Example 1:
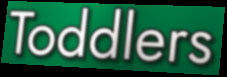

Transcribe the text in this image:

Toddlers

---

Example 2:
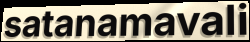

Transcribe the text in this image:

satanamavali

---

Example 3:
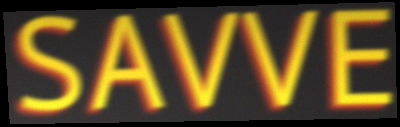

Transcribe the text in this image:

SAVVE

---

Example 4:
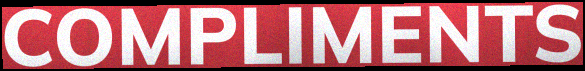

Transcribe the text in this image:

COMPLIMENTS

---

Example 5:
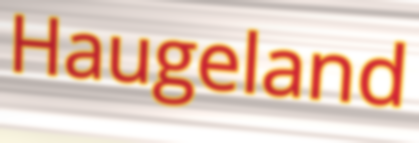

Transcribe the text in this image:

Haugeland